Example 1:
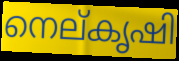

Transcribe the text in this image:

നെല്കൃഷി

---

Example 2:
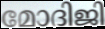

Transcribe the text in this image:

മോദിജി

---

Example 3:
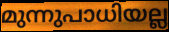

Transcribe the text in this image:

മുന്നുപാധിയല്ല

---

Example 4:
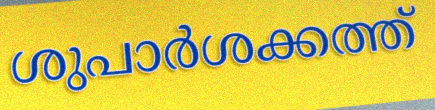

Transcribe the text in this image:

ശുപാർശക്കത്ത്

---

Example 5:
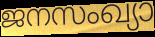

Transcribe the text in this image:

ജനസംഖ്യാ